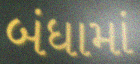
બંધામાં